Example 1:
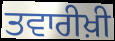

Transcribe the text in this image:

ਤਵਾਰੀਖ਼ੀ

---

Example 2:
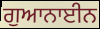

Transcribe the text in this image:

ਗੁਆਨਾਈਨ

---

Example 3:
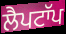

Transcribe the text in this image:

ਲੈਪਟਾੱਪ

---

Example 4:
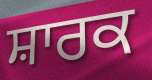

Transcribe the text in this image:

ਸ਼ਾਰਕ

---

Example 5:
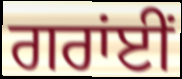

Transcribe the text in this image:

ਗਰਾਂਈਂ